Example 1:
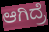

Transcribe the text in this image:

ಆಗಿದ್ರೆ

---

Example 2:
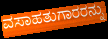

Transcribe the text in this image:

ವಸಾಹತುಗಾರರನ್ನು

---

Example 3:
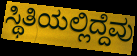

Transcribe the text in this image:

ಸ್ಥಿತಿಯಲ್ಲಿದ್ದೆವು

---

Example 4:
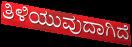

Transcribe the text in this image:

ತಿಳಿಯುವುದಾಗಿದೆ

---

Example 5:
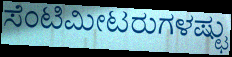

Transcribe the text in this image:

ಸೆಂಟಿಮೀಟರುಗಳಷ್ಟು